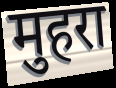
मुहरा